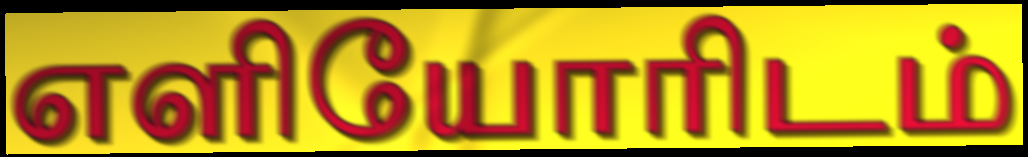
எளியோரிடம்